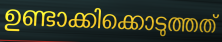
ഉണ്ടാക്കിക്കൊടുത്തത്